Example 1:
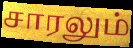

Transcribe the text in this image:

சாரலும்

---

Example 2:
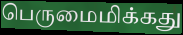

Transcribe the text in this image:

பெருமைமிக்கது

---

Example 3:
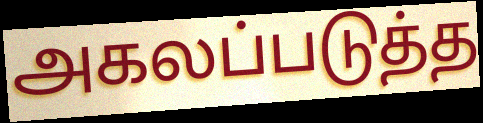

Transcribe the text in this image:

அகலப்படுத்த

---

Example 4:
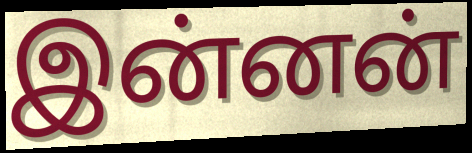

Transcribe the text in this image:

இன்னன்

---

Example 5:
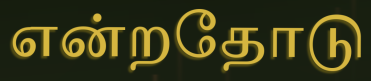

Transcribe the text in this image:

என்றதோடு